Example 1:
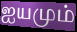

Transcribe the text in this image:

ஐயமும்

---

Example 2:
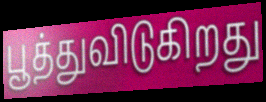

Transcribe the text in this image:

பூத்துவிடுகிறது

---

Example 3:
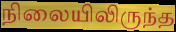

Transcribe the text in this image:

நிலையிலிருந்த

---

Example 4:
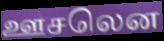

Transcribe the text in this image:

ஊசலென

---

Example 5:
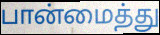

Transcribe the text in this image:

பான்மைத்து